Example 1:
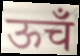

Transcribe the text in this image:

ऊचँ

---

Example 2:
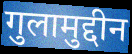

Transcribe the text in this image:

गुलामुद्दीन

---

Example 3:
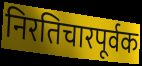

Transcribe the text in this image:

निरतिचारपूर्वक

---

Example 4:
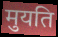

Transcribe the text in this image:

मुयति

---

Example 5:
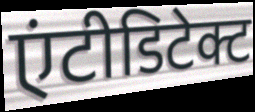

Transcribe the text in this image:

एंटीडिटेक्ट